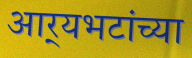
आर्यभटांच्या